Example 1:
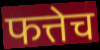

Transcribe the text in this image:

फत्तेच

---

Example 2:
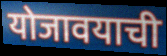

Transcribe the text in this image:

योजावयाची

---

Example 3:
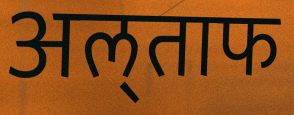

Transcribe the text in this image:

अल्ताफ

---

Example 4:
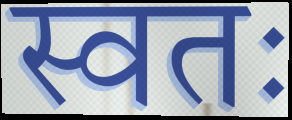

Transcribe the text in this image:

स्वतः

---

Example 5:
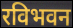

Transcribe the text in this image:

रविभवन